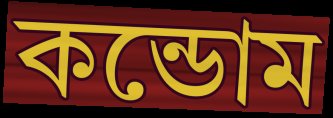
কন্ডোম